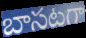
బాసటగా